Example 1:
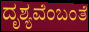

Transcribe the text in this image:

ದೃಶ್ಯವೆಂಬಂತೆ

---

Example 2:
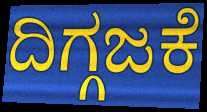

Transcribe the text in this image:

ದಿಗ್ಗಜಕೆ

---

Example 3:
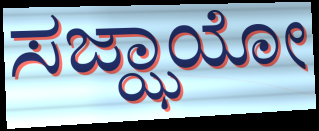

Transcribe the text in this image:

ಸಜ್ಝಾಯೋ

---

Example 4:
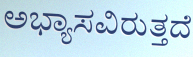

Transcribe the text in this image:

ಅಭ್ಯಾಸವಿರುತ್ತದೆ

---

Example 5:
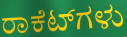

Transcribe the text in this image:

ರಾಕೆಟ್‌ಗಳು